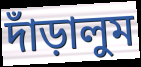
দাঁড়ালুম